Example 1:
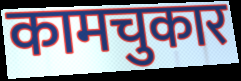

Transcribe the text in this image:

कामचुकार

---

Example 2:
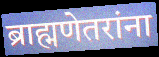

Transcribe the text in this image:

ब्राह्मणेतरांना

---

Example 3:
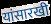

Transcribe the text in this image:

यांसारखी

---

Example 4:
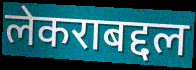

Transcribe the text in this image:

लेकराबद्दल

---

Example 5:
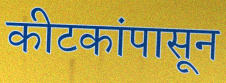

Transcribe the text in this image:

कीटकांपासून